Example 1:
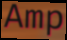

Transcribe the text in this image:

Amp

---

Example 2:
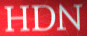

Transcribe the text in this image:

HDN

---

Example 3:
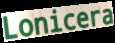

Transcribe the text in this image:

Lonicera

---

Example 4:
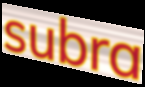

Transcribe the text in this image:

subra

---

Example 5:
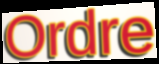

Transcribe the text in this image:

Ordre